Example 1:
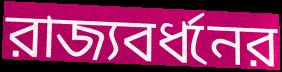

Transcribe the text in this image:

রাজ্যবর্ধনের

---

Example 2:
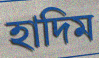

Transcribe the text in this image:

হাদিম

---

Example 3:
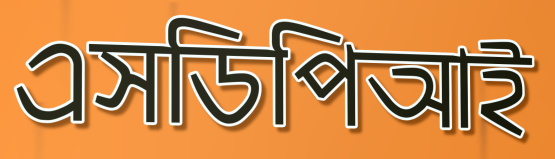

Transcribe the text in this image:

এসডিপিআই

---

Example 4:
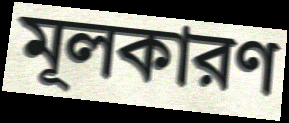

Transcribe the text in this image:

মূলকারণ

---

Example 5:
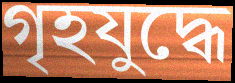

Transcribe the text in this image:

গৃহযুদ্ধে